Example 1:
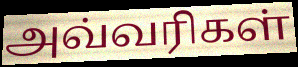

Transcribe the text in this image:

அவ்வரிகள்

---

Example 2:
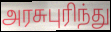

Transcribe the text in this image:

அரசுபுரிந்து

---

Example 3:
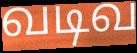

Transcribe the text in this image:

வடிவ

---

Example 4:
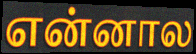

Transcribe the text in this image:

என்னால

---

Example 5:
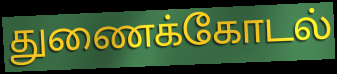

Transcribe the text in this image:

துணைக்கோடல்